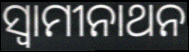
ସ୍ବାମୀନାଥନ